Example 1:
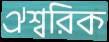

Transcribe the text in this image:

ঐশ্বরিক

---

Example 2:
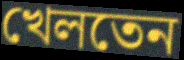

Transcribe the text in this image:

খেলতেন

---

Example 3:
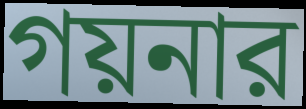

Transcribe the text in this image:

গয়নার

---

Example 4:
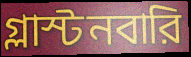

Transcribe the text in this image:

গ্লাস্টনবারি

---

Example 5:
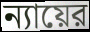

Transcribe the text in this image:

ন্যায়ের